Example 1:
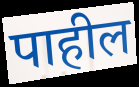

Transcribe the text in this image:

पाहील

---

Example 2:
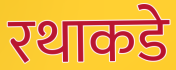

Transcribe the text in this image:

रथाकडे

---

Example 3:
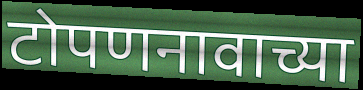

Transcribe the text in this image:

टोपणनावाच्या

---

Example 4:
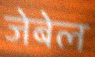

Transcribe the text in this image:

जेबेल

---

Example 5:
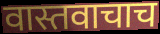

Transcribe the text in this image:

वास्तवाचाच